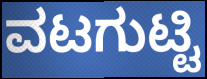
ವಟಗುಟ್ಟಿ